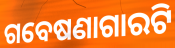
ଗବେଷଣାଗାରଟି